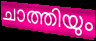
ചാത്തിയും